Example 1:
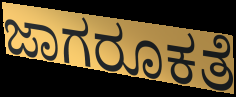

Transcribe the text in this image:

ಜಾಗರೂಕತೆ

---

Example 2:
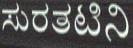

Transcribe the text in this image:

ಸುರತಟಿನಿ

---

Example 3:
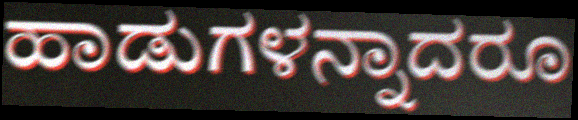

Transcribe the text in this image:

ಹಾಡುಗಳನ್ನಾದರೂ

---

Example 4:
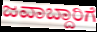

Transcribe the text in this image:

ಜವಾಬ್ದಾರಿಗೆ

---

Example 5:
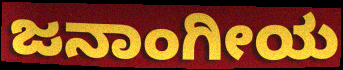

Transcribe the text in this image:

ಜನಾಂಗೀಯ